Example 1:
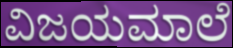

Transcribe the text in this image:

ವಿಜಯಮಾಲೆ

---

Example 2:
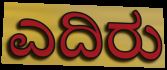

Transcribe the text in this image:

ಎದಿರು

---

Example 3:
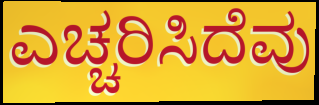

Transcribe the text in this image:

ಎಚ್ಚರಿಸಿದೆವು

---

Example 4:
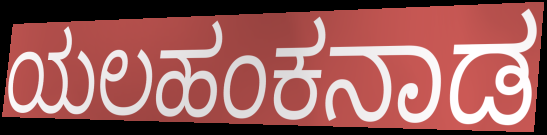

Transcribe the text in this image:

ಯಲಹಂಕನಾಡ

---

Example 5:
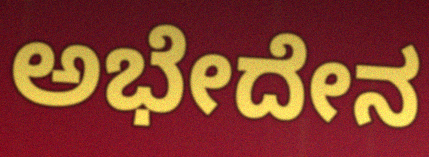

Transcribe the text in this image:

ಅಭೇದೇನ